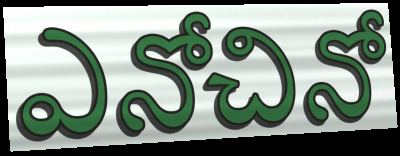
ఎనోచినో